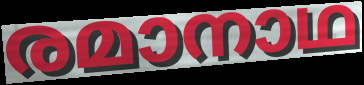
രമാനാഥ